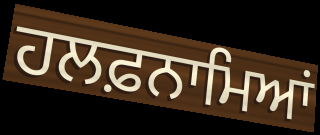
ਹਲਫ਼ਨਾਮਿਆਂ